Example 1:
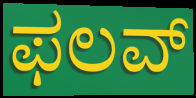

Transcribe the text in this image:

ಫಲವ್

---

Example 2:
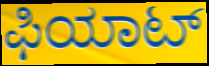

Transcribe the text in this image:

ಫಿಯಾಟ್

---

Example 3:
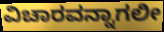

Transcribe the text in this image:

ವಿಚಾರವನ್ನಾಗಲೀ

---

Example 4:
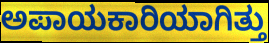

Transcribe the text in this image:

ಅಪಾಯಕಾರಿಯಾಗಿತ್ತು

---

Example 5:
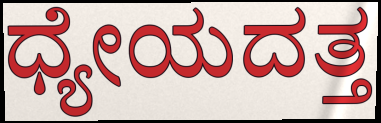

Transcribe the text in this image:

ಧ್ಯೇಯದತ್ತ